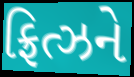
ફ્રિત્ઝને